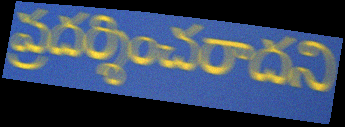
ప్రదర్శించరాదని